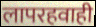
लापरहवाही